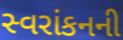
સ્વરાંકનની